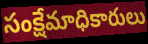
సంక్షేమాధికారులు